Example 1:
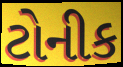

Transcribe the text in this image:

ટોનીક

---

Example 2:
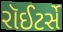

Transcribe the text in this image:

રૉઈટર્સે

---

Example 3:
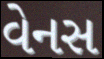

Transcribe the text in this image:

વેનસ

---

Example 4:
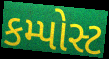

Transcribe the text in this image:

કમ્પોસ્ટ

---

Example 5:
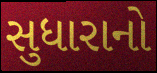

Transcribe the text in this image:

સુધારાનો